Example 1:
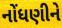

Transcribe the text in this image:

નોંધણીને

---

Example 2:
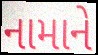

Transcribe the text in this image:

નામાને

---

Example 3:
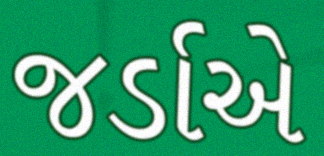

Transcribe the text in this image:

જર્ડાએ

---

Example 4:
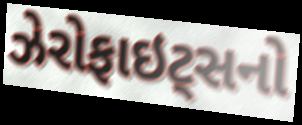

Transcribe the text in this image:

ઝેરોફાઇટ્સનો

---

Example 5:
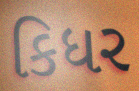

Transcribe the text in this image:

કિધર